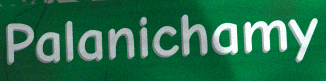
Palanichamy